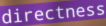
directness